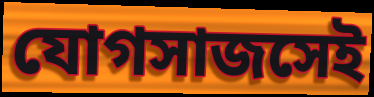
যোগসাজসেই